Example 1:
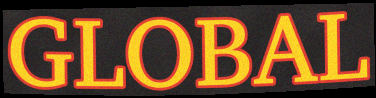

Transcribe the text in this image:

GLOBAL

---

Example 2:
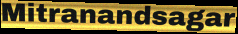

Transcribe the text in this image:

Mitranandsagar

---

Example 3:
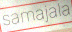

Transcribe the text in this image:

samajala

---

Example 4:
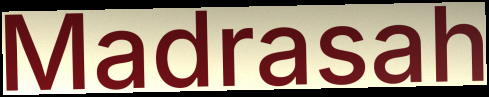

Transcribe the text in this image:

Madrasah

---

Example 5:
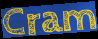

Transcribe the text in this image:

Cram